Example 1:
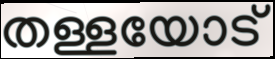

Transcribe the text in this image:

തള്ളയോട്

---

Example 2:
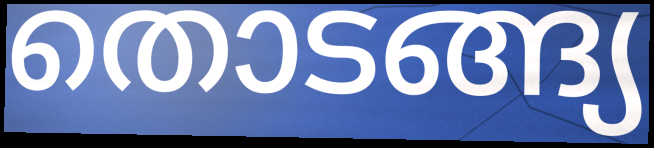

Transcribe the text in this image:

തൊടങ്ങ്യ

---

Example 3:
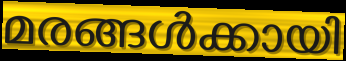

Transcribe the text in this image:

മരങ്ങൾക്കായി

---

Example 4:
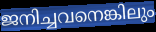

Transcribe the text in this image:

ജനിച്ചവനെങ്കിലും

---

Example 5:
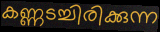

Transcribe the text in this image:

കണ്ണടച്ചിരിക്കുന്ന